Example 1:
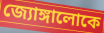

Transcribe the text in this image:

জ্যোঙ্গালোকে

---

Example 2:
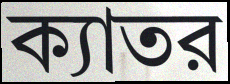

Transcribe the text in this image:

ক্যাতর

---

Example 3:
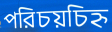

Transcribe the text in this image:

পরিচয়চিহ্ন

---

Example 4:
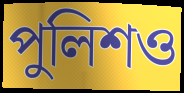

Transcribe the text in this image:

পুলিশও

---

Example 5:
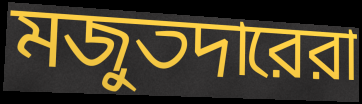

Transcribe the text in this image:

মজুতদারেরা